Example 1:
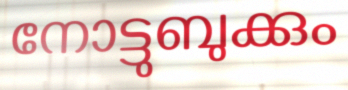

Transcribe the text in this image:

നോട്ടുബുക്കും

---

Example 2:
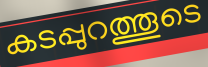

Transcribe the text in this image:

കടപ്പുറത്തൂടെ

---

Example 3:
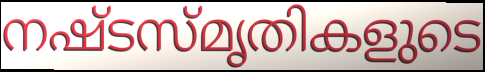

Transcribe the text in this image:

നഷ്ടസ്മൃതികളുടെ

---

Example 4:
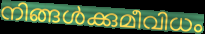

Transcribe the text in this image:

നിങ്ങൾക്കുമീവിധം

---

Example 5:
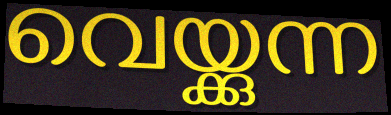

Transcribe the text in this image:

വെയ്ക്കുന്ന